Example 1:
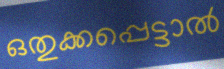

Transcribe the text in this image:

ഒതുക്കപ്പെട്ടാൽ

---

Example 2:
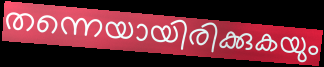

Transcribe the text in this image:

തന്നെയായിരിക്കുകയും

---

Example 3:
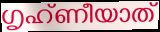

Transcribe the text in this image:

ഗൃഹ്ണീയാത്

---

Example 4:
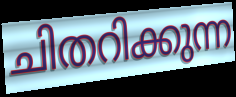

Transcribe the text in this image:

ചിതറിക്കുന്ന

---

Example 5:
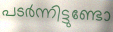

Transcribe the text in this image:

പടർന്നിട്ടുണ്ടോ